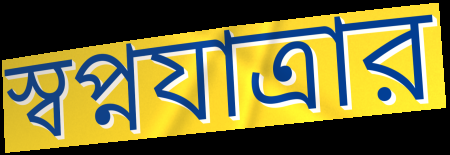
স্বপ্নযাত্রার